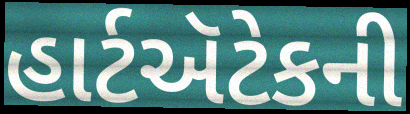
હાર્ટઍટેકની